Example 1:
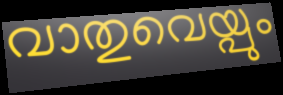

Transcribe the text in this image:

വാതുവെയ്പും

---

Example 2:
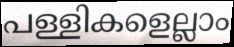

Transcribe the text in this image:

പള്ളികളെല്ലാം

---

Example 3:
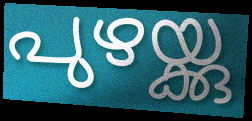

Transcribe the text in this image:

പുഴയ്ക്കു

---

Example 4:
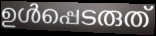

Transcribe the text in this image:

ഉൾപ്പെടരുത്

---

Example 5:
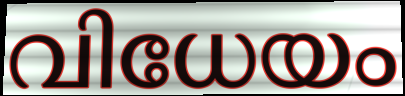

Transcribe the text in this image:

വിധേയം